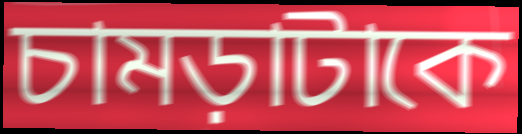
চামড়াটাকে